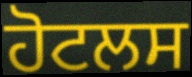
ਹੋਟਲਸ